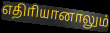
எதிரியானாலும்